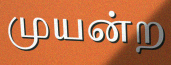
முயன்ற